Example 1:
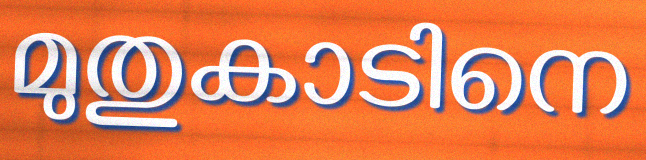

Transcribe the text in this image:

മുതുകാടിനെ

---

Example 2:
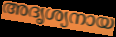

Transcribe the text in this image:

അദൃശ്യനായ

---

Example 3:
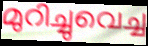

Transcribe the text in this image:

മുറിച്ചുവെച്ച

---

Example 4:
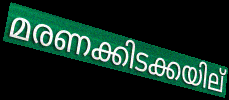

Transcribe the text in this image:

മരണക്കിടക്കയില്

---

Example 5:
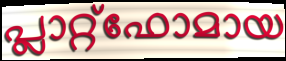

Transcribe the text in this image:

പ്ലാറ്റ്ഫോമായ